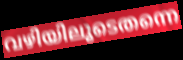
വഴിയിലൂടെതന്നെ